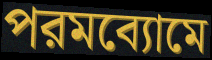
পরমব্যোমে